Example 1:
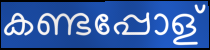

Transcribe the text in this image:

കണ്ടപ്പോള്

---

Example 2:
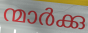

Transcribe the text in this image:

ന്മാർക്കു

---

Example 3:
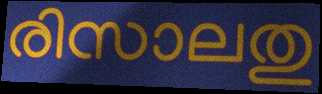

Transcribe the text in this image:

രിസാലതു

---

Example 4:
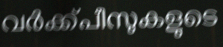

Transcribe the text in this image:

വർക്ക്പീസുകളുടെ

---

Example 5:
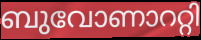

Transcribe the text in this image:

ബുവോണാററ്റി